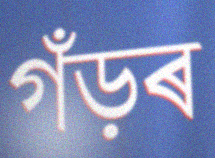
গঁড়ৰ